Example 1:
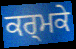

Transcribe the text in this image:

ਕਰ੍ਮਕੇ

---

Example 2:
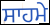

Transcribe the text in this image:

ਸਾਹਮੇ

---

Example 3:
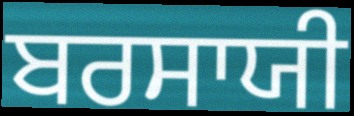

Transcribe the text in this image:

ਬਰਸਾਯੀ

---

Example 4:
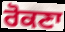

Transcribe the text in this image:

ਰੋਕਣਾ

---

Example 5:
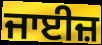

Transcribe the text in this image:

ਜਾਈਜ਼